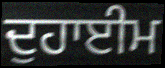
ਦੁਹਾਈਮ